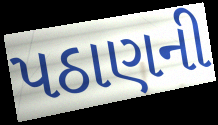
પઠાણની